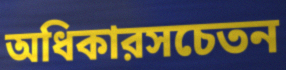
অধিকারসচেতন